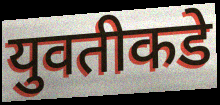
युवतीकडे